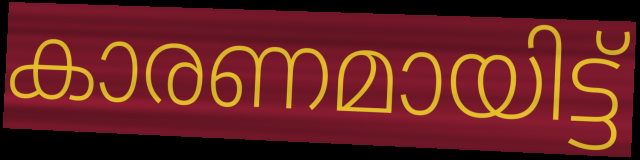
കാരണമായിട്ട്